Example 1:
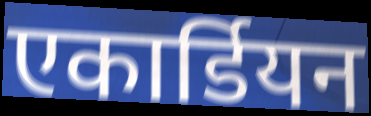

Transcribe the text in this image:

एकार्डियन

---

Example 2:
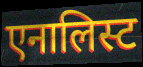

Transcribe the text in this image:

एनालिस्ट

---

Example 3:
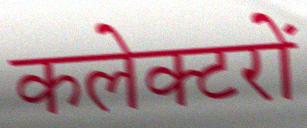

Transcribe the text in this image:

कलेक्टरों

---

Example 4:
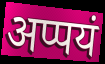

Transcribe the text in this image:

अप्पयं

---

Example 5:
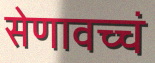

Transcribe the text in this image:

सेणावच्चं